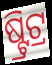
ଷ୍ଟ୍ରିଟ୍ର